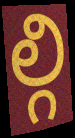
ల్గి